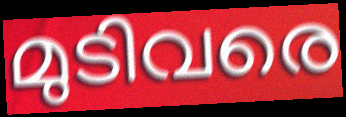
മുടിവരെ